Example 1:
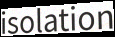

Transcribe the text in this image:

isolation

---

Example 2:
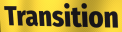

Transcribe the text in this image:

Transition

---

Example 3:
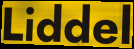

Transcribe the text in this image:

Liddel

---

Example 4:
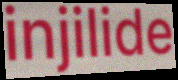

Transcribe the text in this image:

injilide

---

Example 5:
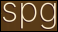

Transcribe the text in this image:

spg